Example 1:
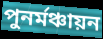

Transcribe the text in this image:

পুনর্মঞ্চায়ন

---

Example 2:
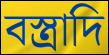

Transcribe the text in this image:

বস্ত্রাদি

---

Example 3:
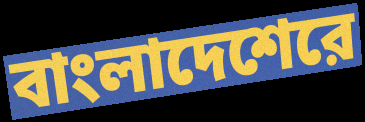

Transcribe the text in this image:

বাংলাদেশেরে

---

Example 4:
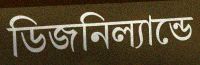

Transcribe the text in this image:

ডিজনিল্যান্ডে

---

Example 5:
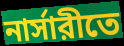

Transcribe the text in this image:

নার্সারীতে